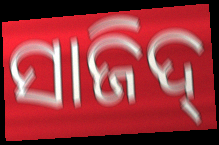
ସାଜିଦ୍